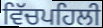
ਵਿੱਚਪਹਿਲੀ